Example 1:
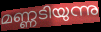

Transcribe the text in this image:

മണ്ണടിയുന്നു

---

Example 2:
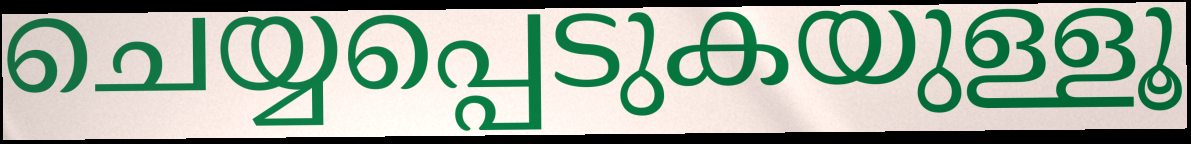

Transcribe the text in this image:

ചെയ്യപ്പെടുകയുള്ളൂ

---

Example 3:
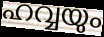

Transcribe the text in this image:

ഹവ്വയും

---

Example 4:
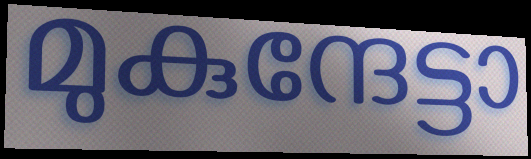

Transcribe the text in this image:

മുകുന്ദേട്ടാ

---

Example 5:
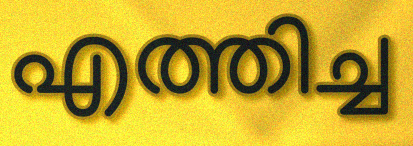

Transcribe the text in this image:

എത്തിച്ച